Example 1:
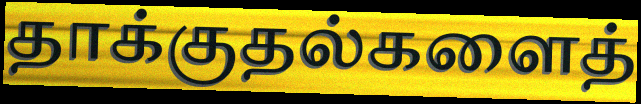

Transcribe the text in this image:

தாக்குதல்களைத்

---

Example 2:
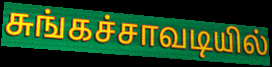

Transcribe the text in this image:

சுங்கச்சாவடியில்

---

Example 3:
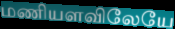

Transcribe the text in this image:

மணியளவிலேயே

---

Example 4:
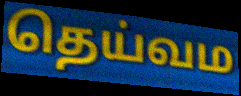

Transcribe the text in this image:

தெய்வம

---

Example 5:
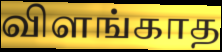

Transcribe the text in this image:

விளங்காத